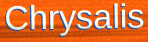
Chrysalis